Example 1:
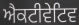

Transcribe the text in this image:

ਐਕਟੀਵੇਟਿਵ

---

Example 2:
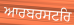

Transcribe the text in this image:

ਆਰਬਰਸਟਰਿ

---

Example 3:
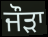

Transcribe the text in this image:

ਜੌੜਾ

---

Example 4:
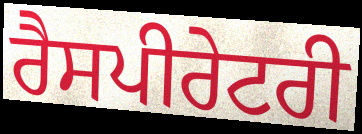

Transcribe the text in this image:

ਰੈਸਪੀਰੇਟਰੀ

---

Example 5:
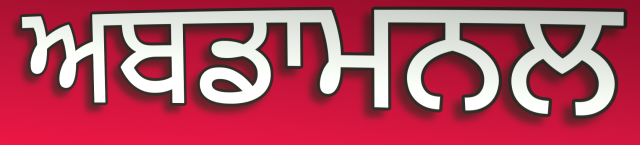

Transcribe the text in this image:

ਅਬਡਾਮਨਲ